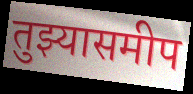
तुझ्यासमीप